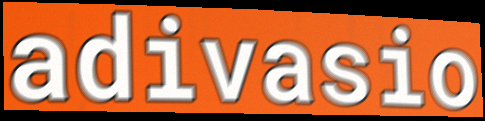
adivasio